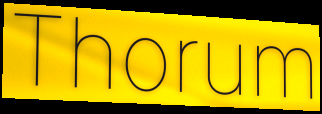
Thorum